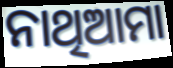
ନାଥିଆମା